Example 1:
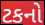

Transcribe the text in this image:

ટકનો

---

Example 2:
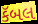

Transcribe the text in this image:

કૅબલ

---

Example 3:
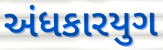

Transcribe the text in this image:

અંધકારયુગ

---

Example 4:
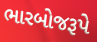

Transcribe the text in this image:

ભારબોજરૂપે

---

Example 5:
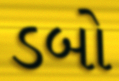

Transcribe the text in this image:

ડબો